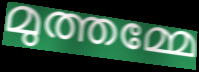
മുത്തമ്മേ